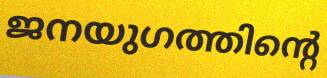
ജനയുഗത്തിന്റെ